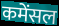
कमेंसल